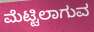
ಮೆಟ್ಟಿಲಾಗುವ